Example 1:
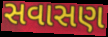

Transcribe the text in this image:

સવાસણ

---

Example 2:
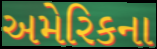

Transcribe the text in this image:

અમેરિકના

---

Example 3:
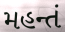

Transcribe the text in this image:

મહન્તં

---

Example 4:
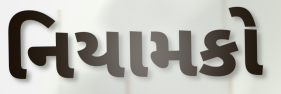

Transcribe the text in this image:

નિયામકો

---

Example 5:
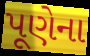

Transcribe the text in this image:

પૂણેના